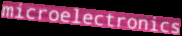
microelectronics